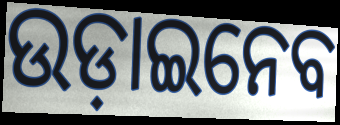
ଉଡ଼ାଇନେବ